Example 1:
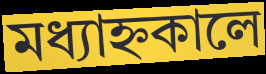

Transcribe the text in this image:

মধ্যাহ্নকালে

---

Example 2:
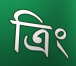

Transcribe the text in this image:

ত্রিং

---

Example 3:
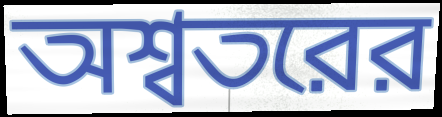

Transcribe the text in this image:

অশ্বতরের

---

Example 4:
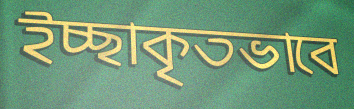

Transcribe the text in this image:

ইচ্ছাকৃতভাবে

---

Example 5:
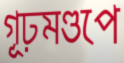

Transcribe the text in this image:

গূঢ়মণ্ডপে